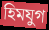
হিমযুগ